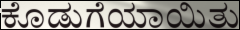
ಕೊಡುಗೆಯಾಯಿತು